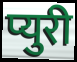
प्युरी